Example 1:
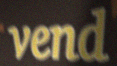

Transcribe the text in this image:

vend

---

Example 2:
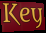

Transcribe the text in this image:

Key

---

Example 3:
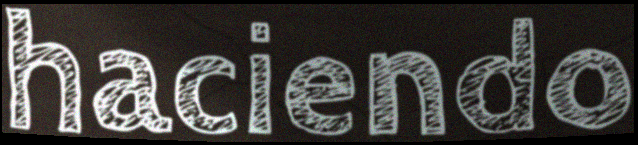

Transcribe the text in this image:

haciendo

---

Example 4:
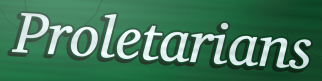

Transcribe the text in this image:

Proletarians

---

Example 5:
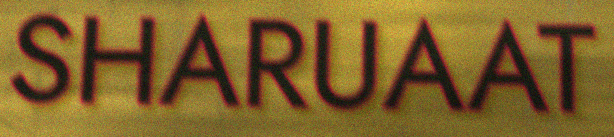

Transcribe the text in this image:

SHARUAAT